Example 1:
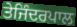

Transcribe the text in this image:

ਤੇਜਿੰਦਰਪਾਲ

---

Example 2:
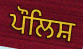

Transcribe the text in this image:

ਪੌਲਿਸ਼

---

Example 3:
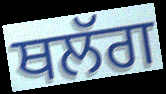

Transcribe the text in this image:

ਥਲੱਗ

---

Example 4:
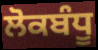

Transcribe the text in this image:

ਲੋਕਬੰਧੂ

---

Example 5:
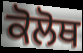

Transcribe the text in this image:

ਕੋਲੋਥ